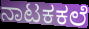
ನಾಟಕಕಲೆ